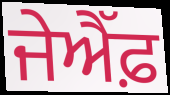
ਜੇਐੱਫ਼